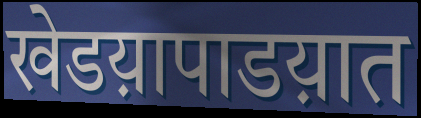
खेडय़ापाडय़ात